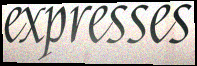
expresses